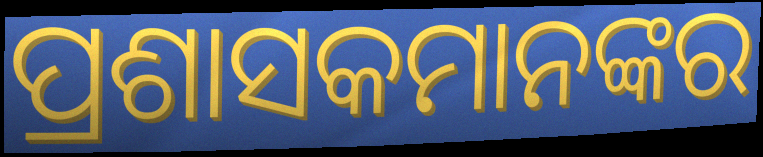
ପ୍ରଶାସକମାନଙ୍କର